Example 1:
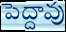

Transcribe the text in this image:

పెద్దావు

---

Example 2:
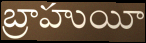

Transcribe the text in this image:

బ్రాహుయీ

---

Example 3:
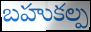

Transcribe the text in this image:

బహుకల్ప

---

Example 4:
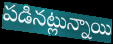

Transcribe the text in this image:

పడినట్లున్నాయి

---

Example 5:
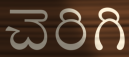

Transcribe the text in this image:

చెరిగి